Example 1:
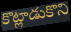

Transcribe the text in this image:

కొట్లాడుకొని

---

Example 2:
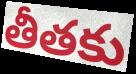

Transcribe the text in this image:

తీతకు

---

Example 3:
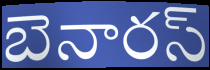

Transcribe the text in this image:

బెనారస్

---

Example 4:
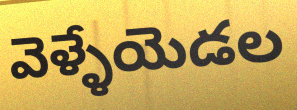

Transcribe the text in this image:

వెళ్ళేయెడల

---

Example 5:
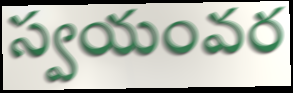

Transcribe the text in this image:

స్వయంవర